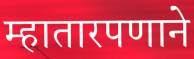
म्हातारपणाने